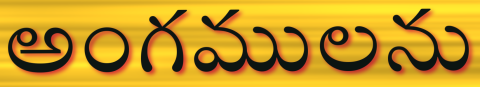
అంగములను